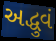
અદ્ધુવં